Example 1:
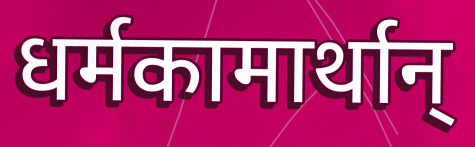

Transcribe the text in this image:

धर्मकामार्थान्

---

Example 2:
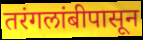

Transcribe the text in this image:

तरंगलांबीपासून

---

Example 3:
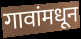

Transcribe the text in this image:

गावांमधून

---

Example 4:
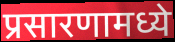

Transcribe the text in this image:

प्रसारणामध्ये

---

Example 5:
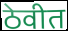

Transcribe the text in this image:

ठेवीत